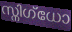
സ്നിഗ്ധോ